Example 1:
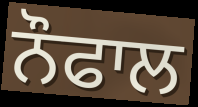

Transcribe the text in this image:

ਨੌਫਾਲ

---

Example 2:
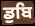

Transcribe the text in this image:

ਡੁਬਿ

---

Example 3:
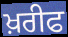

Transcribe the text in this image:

ਖ਼ਰੀਫ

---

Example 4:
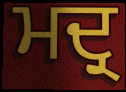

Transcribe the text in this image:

ਮਦ੍ਰ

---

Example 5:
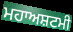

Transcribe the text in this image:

ਮਹਾਅਸ਼ਟਮੀ